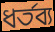
ধর্তব্য